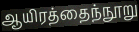
ஆயிரத்தைந்நூறு